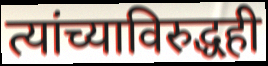
त्यांच्याविरुद्धही